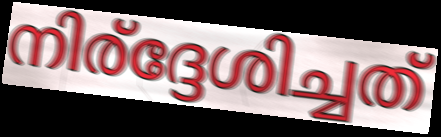
നിര്ദ്ദേശിച്ചത്